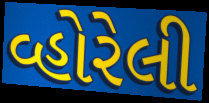
વ્હોરેલી